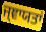
ਜ੍ਞਾਯਤਾਂ